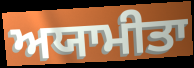
ਅਯਾਮੀਤਾ